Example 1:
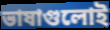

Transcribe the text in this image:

ভাষাগুলোই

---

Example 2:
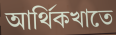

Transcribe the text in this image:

আর্থিকখাতে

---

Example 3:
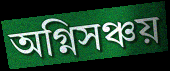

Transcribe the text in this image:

অগ্নিসঞ্চয়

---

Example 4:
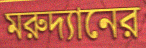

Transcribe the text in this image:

মরুদ্যানের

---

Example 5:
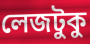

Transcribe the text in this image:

লেজটুকু